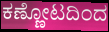
ಕಣ್ಣೋಟದಿಂದ